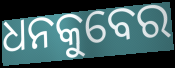
ଧନକୁବେର